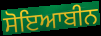
ਸੋਇਆਬੀਨ